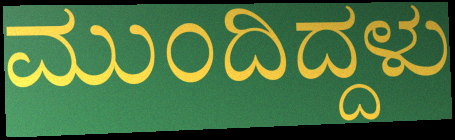
ಮುಂದಿದ್ದಳು